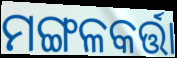
ମଙ୍ଗଳକର୍ତ୍ତା